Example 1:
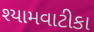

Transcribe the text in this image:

શ્યામવાટીકા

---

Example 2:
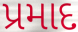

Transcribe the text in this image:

પ્રમાદ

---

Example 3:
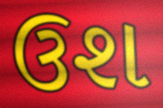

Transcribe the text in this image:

ઉશ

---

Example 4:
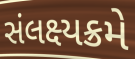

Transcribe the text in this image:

સંલક્ષ્યક્રમે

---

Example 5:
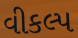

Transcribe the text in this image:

વીકલ્પ